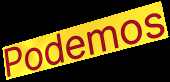
Podemos